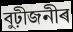
বুঢ়ীজনীৰ